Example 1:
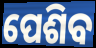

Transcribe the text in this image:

ପେଶିବ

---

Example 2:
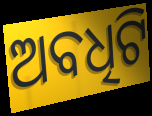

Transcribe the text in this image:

ଅବଧିଟି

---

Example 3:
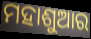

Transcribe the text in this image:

ମହାଶୁଆର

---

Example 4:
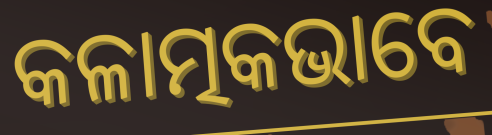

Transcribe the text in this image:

କଳାତ୍ମକଭାବେ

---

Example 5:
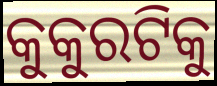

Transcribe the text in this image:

କୁକୁରଟିକୁ